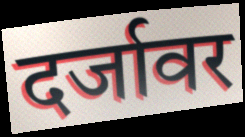
दर्जावर